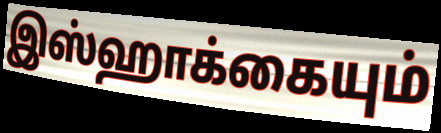
இஸ்ஹாக்கையும்